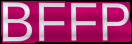
BFFP